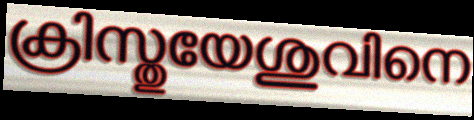
ക്രിസ്തുയേശുവിനെ